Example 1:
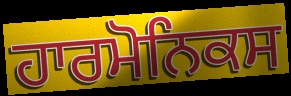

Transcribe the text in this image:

ਹਾਰਮੋਨਿਕਸ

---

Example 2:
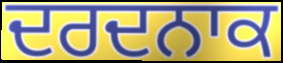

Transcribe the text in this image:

ਦਰਦਨਾਕ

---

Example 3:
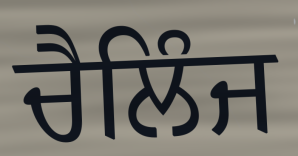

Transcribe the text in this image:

ਚੈਲਿੰਜ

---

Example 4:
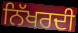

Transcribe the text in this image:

ਨਿੱਖਰਦੀ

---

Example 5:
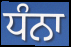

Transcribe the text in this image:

ਧੰਨਾ